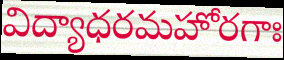
విద్యాధరమహోరగాః